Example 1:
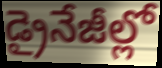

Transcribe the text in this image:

డ్రైనేజీల్లో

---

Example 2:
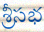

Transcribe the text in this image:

శ్రీసభ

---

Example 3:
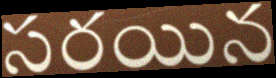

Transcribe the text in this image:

సరయిన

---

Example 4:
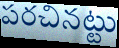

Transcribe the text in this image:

పరచినట్టు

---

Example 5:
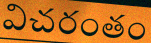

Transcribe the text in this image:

విచరంతం